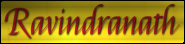
Ravindranath